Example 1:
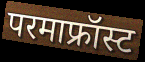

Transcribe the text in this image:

परमाफ्रॉस्ट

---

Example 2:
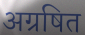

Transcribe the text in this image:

अग्रषित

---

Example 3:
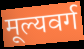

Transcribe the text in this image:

मूल्यवर्ग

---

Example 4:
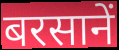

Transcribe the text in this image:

बरसानें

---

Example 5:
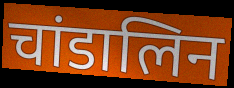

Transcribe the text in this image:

चांडालिन